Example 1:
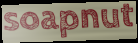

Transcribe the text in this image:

soapnut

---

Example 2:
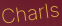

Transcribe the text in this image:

Charls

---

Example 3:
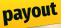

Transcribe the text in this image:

payout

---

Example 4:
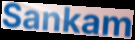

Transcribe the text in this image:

Sankam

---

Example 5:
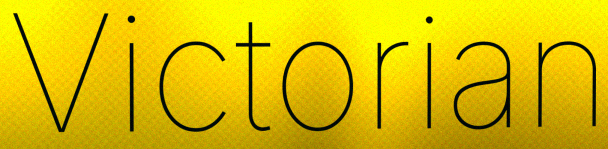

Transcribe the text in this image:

Victorian